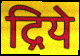
द्रिये